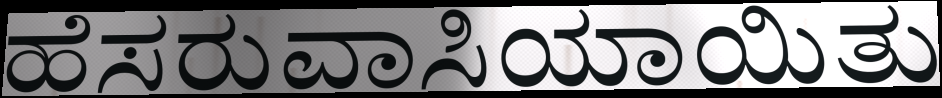
ಹೆಸರುವಾಸಿಯಾಯಿತು